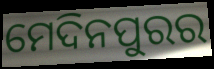
ମେଦିନପୁରର